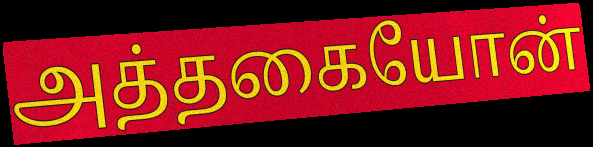
அத்தகையோன்